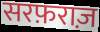
सरफ़राज़